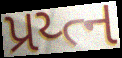
પ્રય્ત્ન